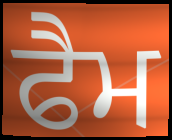
ਫੈਮ